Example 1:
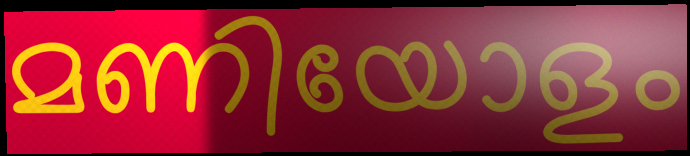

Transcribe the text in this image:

മണിയോളം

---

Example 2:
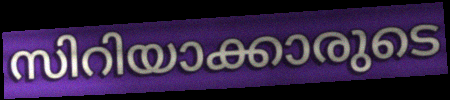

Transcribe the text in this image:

സിറിയാക്കാരുടെ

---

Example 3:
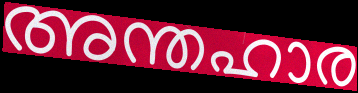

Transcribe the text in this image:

അന്തഹാര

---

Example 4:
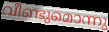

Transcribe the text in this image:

വീണ്ടുമൊന്നു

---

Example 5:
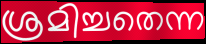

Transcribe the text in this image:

ശ്രമിച്ചതെന്ന